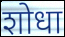
शोधा